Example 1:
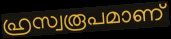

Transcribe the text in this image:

ഹ്രസ്വരൂപമാണ്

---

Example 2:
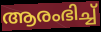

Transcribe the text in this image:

ആരംഭിച്ച്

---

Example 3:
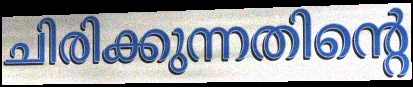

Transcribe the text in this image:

ചിരിക്കുന്നതിന്റെ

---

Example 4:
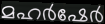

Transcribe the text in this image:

മഹർഷേർ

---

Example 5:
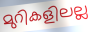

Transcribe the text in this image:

മുറികളിലല്ല